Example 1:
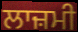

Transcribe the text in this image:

ਲਾਜ਼ਮੀ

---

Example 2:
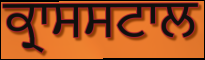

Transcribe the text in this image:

ਕ੍ਰਾਸਸਟਾਲ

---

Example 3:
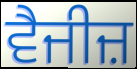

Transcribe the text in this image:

ਵੈਜੀਜ਼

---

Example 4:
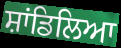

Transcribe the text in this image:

ਸ਼ਾਂਡਿਲਿਆ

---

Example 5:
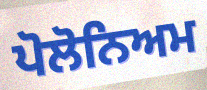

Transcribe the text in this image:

ਪੋਲੋਨਿਅਮ